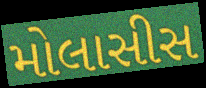
મોલાસીસ